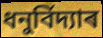
ধনুৰ্বিদ্যাৰ